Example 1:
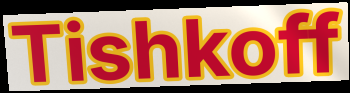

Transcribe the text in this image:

Tishkoff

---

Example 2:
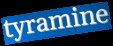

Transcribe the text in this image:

tyramine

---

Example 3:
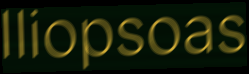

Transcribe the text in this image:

Iliopsoas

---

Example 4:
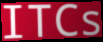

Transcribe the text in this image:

ITCs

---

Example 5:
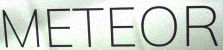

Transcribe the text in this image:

METEOR